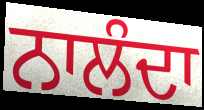
ਨਾਲੰਦਾ